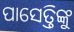
ପାସେତ୍ତିଙ୍କୁ